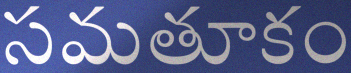
సమతూకం